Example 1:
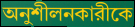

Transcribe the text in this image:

অনুশীলনকারীকে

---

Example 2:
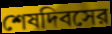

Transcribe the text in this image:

শেষদিবসের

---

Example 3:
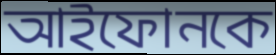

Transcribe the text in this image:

আইফোনকে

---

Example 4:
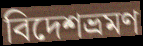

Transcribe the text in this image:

বিদেশভ্রমণ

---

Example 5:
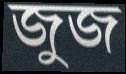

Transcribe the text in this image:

জুজ